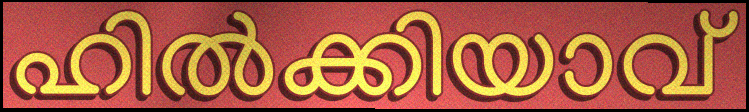
ഹിൽക്കിയാവ്